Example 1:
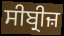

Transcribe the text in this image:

ਸੀਬ੍ਰੀਜ਼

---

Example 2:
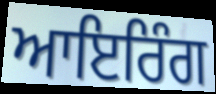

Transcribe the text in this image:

ਆਇਰਿੰਗ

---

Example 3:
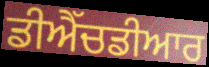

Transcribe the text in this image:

ਡੀਐੱਚਡੀਆਰ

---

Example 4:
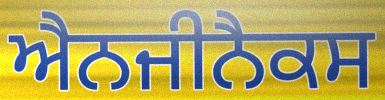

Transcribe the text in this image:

ਐਨਜੀਨੈਕਸ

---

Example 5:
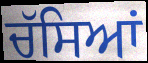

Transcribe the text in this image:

ਚੱਸਿਆਂ